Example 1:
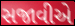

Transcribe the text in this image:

સજાવીએ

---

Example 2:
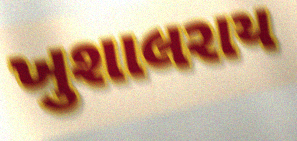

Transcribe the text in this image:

ખુશાલરાય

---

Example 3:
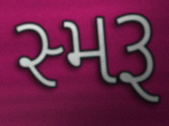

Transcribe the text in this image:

સ્મરૂ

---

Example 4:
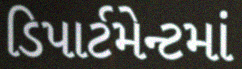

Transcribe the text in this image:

ડિપાર્ટમેન્ટમાં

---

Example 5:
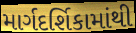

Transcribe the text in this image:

માર્ગદર્શિકામાંથી